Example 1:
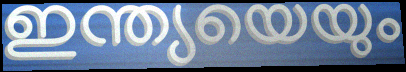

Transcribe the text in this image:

ഇന്ത്യയെയും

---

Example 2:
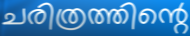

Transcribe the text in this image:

ചരിത്രത്തിന്റെ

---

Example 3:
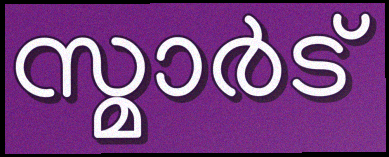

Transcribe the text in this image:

സ്മാർട്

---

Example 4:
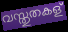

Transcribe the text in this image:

വസ്തുതകള്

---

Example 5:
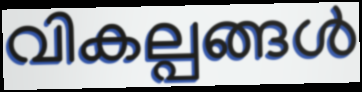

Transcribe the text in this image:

വികല്പങ്ങൾ